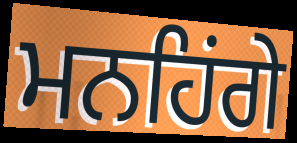
ਮਨਹਿਂਗੇ